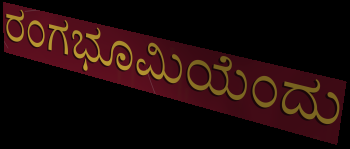
ರಂಗಭೂಮಿಯೆಂದು